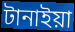
টানাইয়া